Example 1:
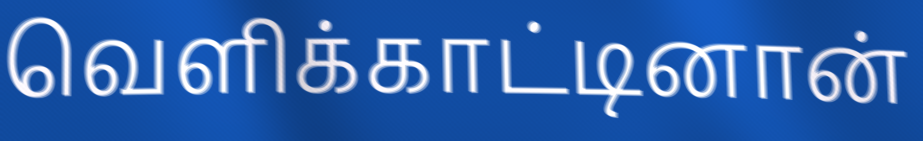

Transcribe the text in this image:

வெளிக்காட்டினான்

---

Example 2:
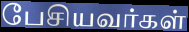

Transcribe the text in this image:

பேசியவர்கள்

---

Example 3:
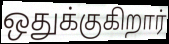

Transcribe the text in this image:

ஒதுக்குகிறார்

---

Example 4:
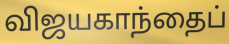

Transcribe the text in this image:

விஜயகாந்தைப்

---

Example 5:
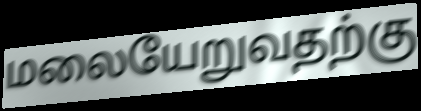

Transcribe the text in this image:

மலையேறுவதற்கு